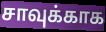
சாவுக்காக